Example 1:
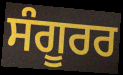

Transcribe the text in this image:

ਸੰਗੂਰਰ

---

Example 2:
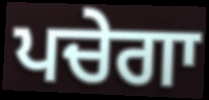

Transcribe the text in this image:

ਪਚੇਗਾ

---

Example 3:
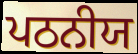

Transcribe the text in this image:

ਪਠਨੀਯ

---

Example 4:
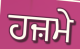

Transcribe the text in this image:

ਹਜ਼ਮੇ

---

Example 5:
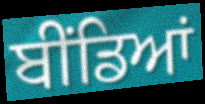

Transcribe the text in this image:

ਬੀਂਡਿਆਂ